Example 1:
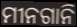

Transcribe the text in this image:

ମୀନଗାନି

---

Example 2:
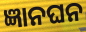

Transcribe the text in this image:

ଜ୍ଞାନଘନ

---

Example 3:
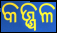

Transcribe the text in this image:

କଜ୍ଜ୍ୱଳ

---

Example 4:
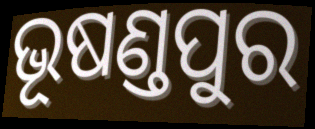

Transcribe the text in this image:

ଭୂଷଣ୍ଡପୁର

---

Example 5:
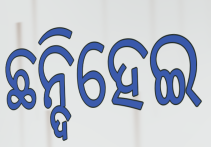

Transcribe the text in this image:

ଛନ୍ଦିହେଇ